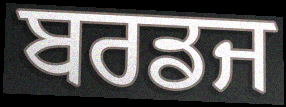
ਬਰਡਜ